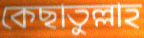
কেছাতুল্লাহ